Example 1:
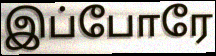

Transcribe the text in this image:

இப்போரே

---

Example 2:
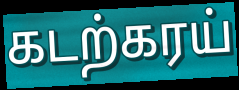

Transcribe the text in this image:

கடற்கரய்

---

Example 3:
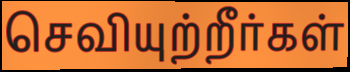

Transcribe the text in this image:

செவியுற்றீர்கள்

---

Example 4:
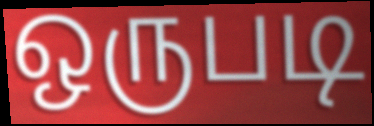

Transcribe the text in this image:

ஒருபடி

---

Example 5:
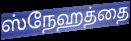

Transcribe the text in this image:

ஸ்நேஹத்தை